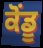
ਕੋਂਡੂ